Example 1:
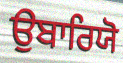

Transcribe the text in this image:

ਉਬਾਰਿਯੋ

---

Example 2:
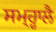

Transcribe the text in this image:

ਸਮ੍ਹ੍ਹਾਲੈ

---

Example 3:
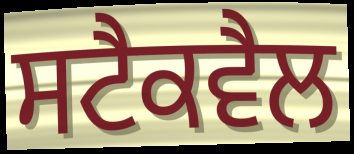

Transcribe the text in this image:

ਸਟੈਕਵੈਲ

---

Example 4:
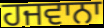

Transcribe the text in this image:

ਹਜਵਾਨਾ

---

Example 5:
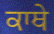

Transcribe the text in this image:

ਕਾਥੇ